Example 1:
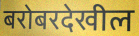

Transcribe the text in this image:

बरोबरदेखील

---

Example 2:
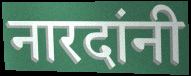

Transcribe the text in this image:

नारदांनी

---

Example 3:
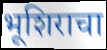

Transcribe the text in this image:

भूशिराचा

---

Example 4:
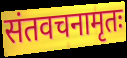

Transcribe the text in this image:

संतवचनामृतः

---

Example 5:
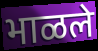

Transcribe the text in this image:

भाळले